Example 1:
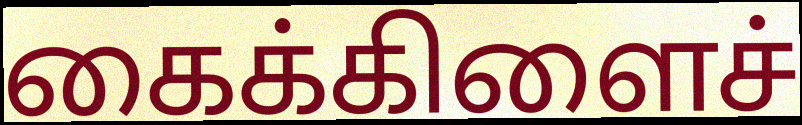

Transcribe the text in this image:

கைக்கிளைச்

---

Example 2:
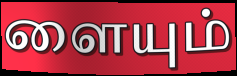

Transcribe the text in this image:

ளையும்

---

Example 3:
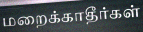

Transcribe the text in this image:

மறைக்காதீர்கள்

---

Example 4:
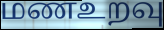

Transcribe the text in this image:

மணஉறவு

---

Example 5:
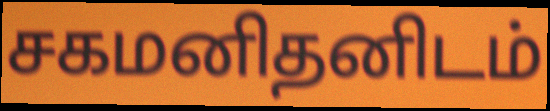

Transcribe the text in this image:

சகமனிதனிடம்